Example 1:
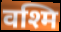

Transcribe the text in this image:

वश्मि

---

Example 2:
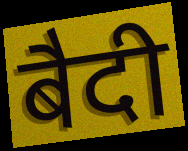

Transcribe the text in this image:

बैदी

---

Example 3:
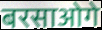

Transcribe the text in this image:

बरसाओगे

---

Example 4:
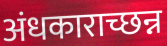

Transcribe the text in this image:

अंधकाराच्छन्न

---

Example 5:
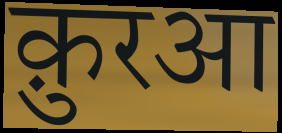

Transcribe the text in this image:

क़ुरआ